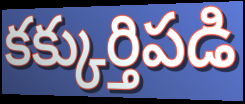
కక్కుర్తిపడి